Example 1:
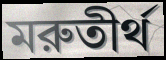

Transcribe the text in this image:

মরুতীর্থ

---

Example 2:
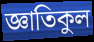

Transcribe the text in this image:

জ্ঞাতিকুল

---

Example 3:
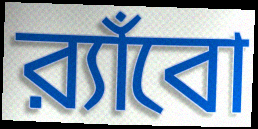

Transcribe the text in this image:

র‍্যাঁবো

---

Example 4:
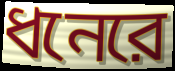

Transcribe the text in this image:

ধনেরে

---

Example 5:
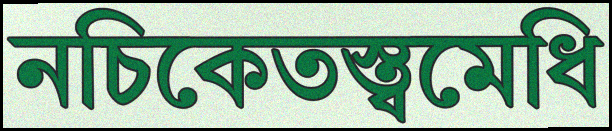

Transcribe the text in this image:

নচিকেতস্ত্বমেধি